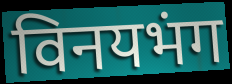
विनयभंग